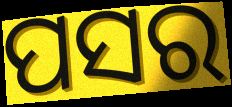
ପସର